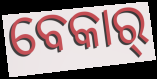
ବେକାର୍